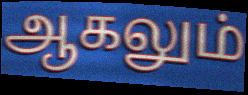
ஆகலும்